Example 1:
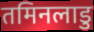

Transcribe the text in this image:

तमिनलाडु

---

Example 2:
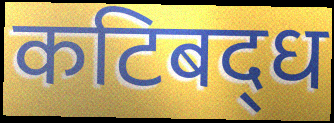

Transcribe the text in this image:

कटिबद्ध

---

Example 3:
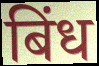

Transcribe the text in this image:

बिंध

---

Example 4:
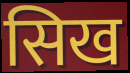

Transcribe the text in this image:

सिख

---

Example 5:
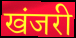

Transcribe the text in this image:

खंजरी